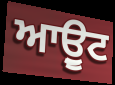
ਆਉੂਟ